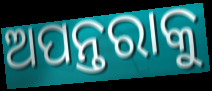
ଅପନ୍ତରାକୁ